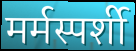
मर्मस्पर्शी